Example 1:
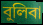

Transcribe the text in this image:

বুলিবা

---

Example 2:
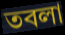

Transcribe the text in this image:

তবলা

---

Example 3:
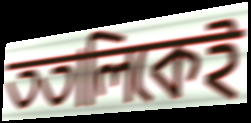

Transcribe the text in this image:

ততালিকেই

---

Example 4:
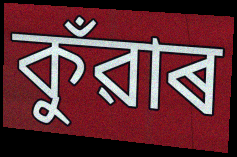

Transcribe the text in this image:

কুঁৱাৰ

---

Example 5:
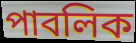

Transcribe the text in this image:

পাবলিক